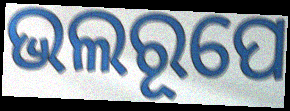
ଭଲରୂପେ